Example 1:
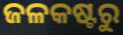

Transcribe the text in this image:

ଜଳକଷ୍ଟରୁ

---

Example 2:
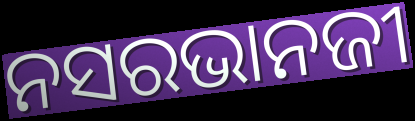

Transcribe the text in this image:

ନସରଭାନଜୀ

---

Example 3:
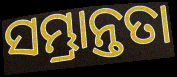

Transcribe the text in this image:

ସମ୍ଭ୍ରାନ୍ତତା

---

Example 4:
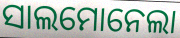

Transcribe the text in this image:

ସାଲମୋନେଲା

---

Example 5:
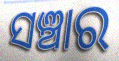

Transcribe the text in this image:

ସଞ୍ଚାର